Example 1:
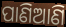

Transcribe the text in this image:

ପାଣିଆଣି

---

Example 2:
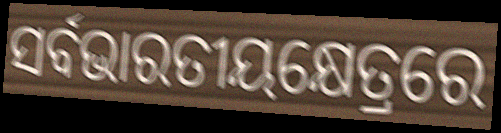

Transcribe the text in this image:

ସର୍ବଭାରତୀୟକ୍ଷେତ୍ରରେ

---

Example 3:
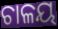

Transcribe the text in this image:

ଚାଳୟ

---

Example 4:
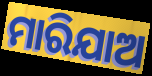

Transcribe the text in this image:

ମାରିଯାଅ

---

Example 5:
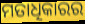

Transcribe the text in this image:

ମତାଧିକାରର